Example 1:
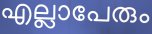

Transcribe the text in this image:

എല്ലാപേരും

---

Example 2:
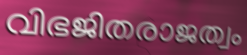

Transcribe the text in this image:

വിഭജിതരാജത്വം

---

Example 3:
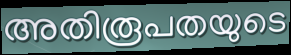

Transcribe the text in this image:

അതിരൂപതയുടെ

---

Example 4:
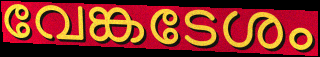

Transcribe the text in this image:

വേങ്കടേശം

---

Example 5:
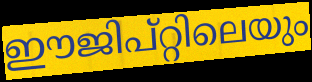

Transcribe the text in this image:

ഈജിപ്റ്റിലെയും